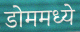
डोममध्ये